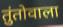
तुंतोवाला